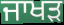
ਜਾਖੜ